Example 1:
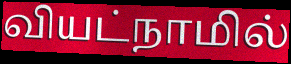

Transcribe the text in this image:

வியட்நாமில்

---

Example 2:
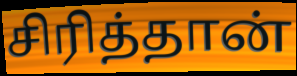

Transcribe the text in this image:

சிரித்தான்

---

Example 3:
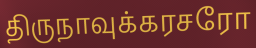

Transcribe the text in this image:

திருநாவுக்கரசரோ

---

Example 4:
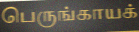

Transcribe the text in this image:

பெருங்காயக்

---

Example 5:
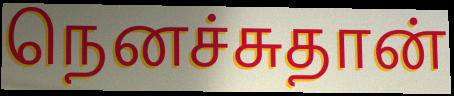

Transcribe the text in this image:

நெனச்சுதான்